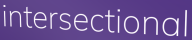
intersectional